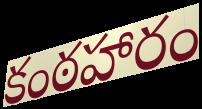
కంఠహారం